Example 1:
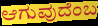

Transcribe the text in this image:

ಆಗುವುದೆಂಬ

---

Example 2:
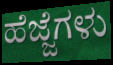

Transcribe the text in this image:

ಹೆಜ್ಜೆಗಳು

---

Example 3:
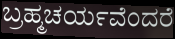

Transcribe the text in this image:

ಬ್ರಹ್ಮಚರ್ಯವೆಂದರೆ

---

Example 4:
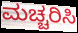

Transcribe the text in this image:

ಮಚ್ಚರಿಸಿ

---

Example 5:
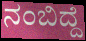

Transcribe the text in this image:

ನಂಬಿದ್ದೆ